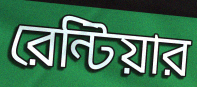
রেন্টিয়ার